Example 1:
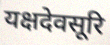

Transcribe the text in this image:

यक्षदेवसूरि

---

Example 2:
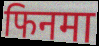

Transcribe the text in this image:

फिनमा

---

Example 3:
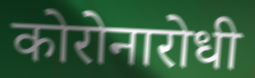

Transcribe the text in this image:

कोरोनारोधी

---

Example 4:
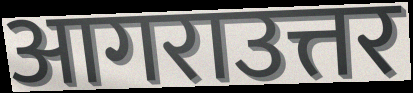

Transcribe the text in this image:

आगराउत्तर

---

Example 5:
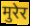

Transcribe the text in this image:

मुरेर